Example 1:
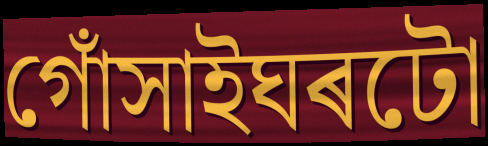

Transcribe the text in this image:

গোঁসাইঘৰটো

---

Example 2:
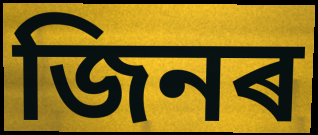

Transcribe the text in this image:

জিনৰ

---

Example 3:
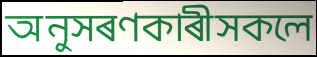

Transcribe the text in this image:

অনুসৰণকাৰীসকলে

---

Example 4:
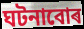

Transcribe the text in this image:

ঘটনাবোৰ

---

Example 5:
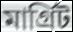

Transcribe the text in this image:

মাৰ্গ্ৰিট